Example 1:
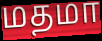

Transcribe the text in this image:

மதமா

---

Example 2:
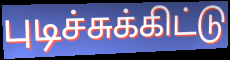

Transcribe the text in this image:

புடிச்சுக்கிட்டு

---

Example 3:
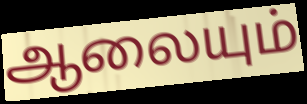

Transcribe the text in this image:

ஆலையும்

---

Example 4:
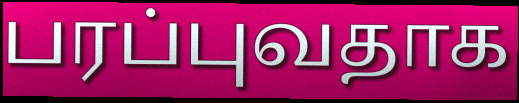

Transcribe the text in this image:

பரப்புவதாக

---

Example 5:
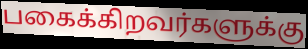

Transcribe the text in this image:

பகைக்கிறவர்களுக்கு